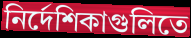
নির্দেশিকাগুলিতে